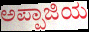
ಅಪ್ಪಾಜಿಯ